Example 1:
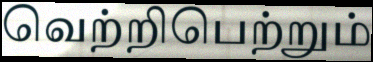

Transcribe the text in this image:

வெற்றிபெற்றும்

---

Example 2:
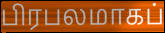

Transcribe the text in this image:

பிரபலமாகப்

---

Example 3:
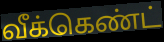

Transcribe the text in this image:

வீக்கெண்ட்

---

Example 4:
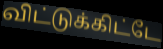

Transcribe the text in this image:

விட்டுக்கிட்டே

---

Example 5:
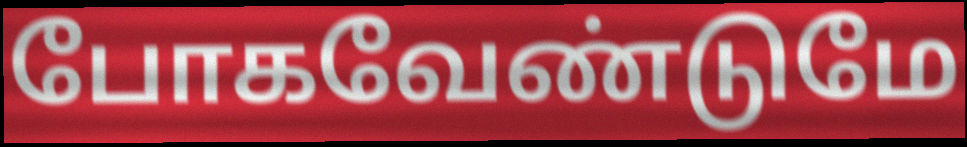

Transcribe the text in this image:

போகவேண்டுமே